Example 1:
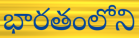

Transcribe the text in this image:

భారతంలోని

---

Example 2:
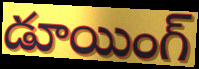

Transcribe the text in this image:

డూయింగ్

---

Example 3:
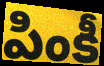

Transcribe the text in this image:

పింకీ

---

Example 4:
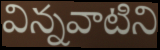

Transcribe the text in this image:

విన్నవాటిని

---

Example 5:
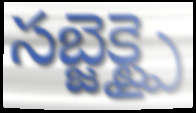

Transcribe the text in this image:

సబ్జెక్ట్పై